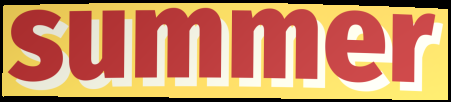
summer